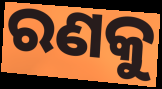
ରଣକୁ